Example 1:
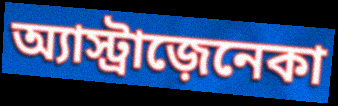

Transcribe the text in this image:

অ্যাস্ট্রাজ়েনেকা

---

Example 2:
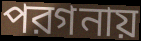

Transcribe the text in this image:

পরগনায়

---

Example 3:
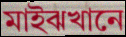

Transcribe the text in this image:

মাইঝখানে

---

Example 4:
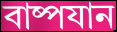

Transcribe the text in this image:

বাষ্পযান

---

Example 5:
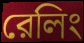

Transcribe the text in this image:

রেলিং